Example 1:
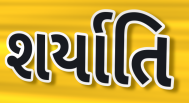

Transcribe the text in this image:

શર્યાતિ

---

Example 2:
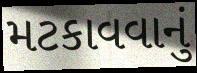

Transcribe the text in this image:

મટકાવવાનું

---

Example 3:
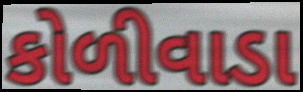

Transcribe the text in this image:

કોળીવાડા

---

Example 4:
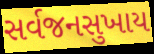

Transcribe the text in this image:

સર્વજનસુખાય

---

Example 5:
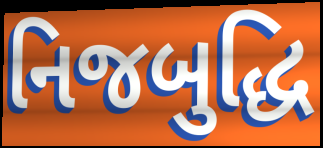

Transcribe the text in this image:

નિજબુદ્ધિ